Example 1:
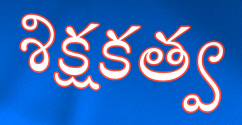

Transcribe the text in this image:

శిక్షకత్వ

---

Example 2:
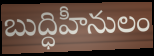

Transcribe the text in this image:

బుద్ధిహీనులం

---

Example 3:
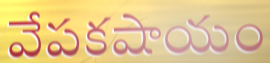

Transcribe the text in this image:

వేపకషాయం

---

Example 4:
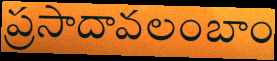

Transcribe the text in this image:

ప్రసాదావలంబాం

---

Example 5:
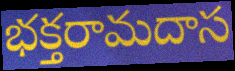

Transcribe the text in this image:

భక్తరామదాస